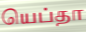
யெப்தா